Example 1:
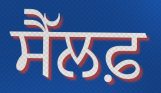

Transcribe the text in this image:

ਸੈੱਲਫ਼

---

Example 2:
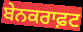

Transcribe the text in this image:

ਬੇਨਕਰਾਫ਼ਟ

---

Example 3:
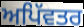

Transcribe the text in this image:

ਅਪਿੱਵਤਰ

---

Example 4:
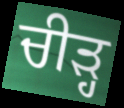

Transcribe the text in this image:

ਚੀੜ੍ਹ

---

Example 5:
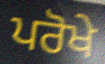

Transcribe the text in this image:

ਪਰੋਖੇ